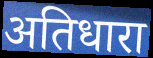
अतिधारा